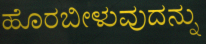
ಹೊರಬೀಳುವುದನ್ನು